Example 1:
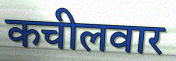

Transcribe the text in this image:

कचीलवार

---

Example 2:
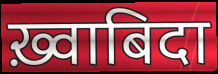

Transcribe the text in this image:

ख़्वाबिदा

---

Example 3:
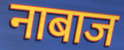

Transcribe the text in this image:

नाबाज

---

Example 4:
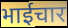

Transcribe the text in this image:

भाईचार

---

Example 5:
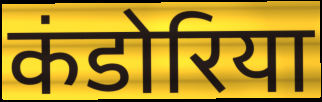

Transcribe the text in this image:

कंडोरिया